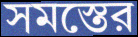
সমস্তের